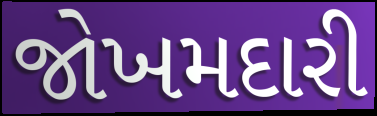
જોખમદારી